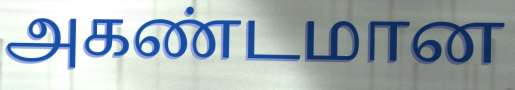
அகண்டமான